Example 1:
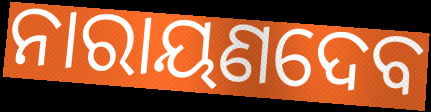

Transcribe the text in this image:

ନାରାୟଣଦେବ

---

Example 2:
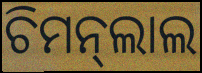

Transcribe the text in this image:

ଚିମନ୍‍ଲାଲ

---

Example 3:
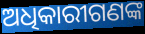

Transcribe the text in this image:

ଅଧିକାରୀଗଣଙ୍କ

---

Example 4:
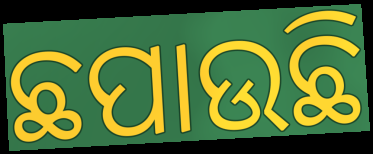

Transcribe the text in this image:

ଛପାଉଛି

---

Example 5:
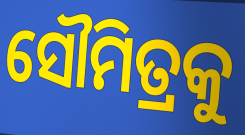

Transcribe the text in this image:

ସୌମିତ୍ରକୁ